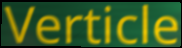
Verticle